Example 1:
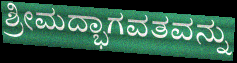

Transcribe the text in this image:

ಶ್ರೀಮದ್ಭಾಗವತವನ್ನು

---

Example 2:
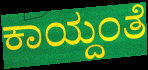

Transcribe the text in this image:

ಕಾಯ್ದಂತೆ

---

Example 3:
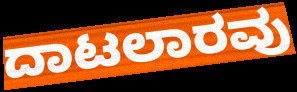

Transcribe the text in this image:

ದಾಟಲಾರವು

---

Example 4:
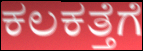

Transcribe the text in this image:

ಕಲಕತ್ತೆಗೆ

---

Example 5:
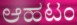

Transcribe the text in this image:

ಆಹಟಂ